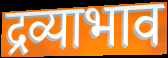
द्रव्याभाव